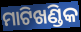
ମାଟିଖଣ୍ଡିକ